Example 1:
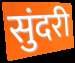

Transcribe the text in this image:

सुंदरी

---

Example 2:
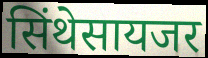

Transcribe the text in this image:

सिंथेसायजर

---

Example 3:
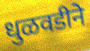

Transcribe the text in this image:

धुळवडीने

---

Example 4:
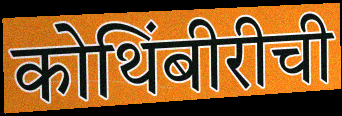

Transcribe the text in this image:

कोथिंबीरीची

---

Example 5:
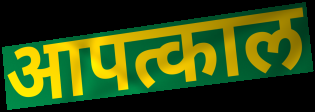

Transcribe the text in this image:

आपत्काल